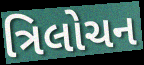
ત્રિલોચન